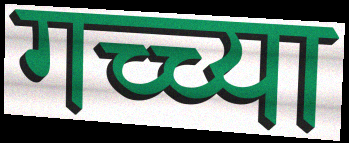
गच्च्या